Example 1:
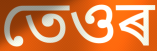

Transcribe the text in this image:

তেওৰ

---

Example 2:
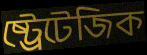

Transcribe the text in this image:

ষ্ট্ৰেটেজিক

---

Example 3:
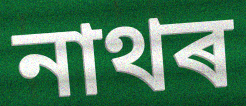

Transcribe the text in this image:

নাথৰ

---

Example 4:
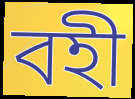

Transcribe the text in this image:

বহী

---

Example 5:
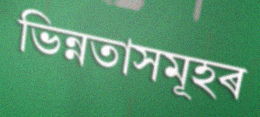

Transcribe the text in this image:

ভিন্নতাসমূহৰ